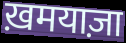
ख़मयाज़ा